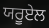
ਯਰੂਏਲ